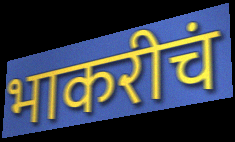
भाकरीचं